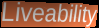
Liveability